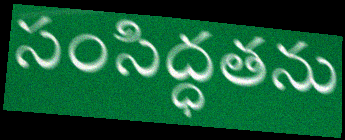
సంసిద్ధతను